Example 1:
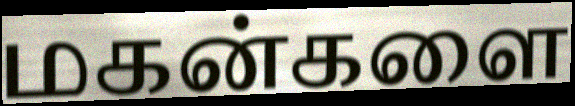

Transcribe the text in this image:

மகன்களை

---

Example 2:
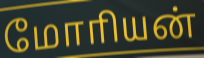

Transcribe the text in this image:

மோரியன்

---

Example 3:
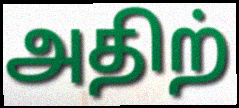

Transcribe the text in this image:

அதிற்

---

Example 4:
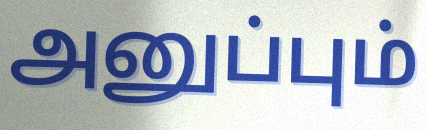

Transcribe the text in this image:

அனுப்பும்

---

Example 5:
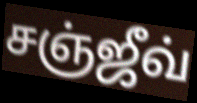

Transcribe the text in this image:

சஞ்ஜீவ்